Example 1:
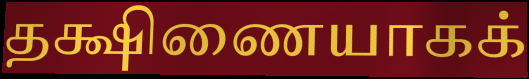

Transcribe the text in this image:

தக்ஷிணையாகக்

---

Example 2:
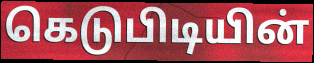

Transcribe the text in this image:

கெடுபிடியின்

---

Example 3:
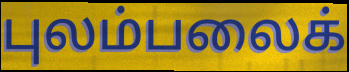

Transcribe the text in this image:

புலம்பலைக்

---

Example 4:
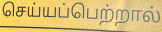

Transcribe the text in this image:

செய்யப்பெற்றால்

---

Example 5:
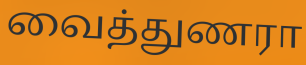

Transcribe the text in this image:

வைத்துணரா